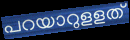
പറയാറുളളത്